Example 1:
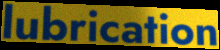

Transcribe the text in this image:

lubrication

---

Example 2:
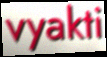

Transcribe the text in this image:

vyakti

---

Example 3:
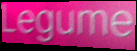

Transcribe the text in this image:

Legume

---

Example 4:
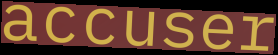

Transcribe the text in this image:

accuser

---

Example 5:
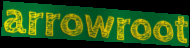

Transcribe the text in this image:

arrowroot